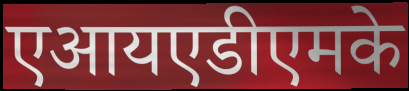
एआयएडीएमके